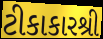
ટીકાકારશ્રી